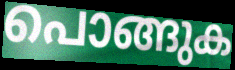
പൊങ്ങുക